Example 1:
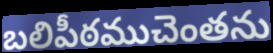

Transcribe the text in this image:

బలిపీఠముచెంతను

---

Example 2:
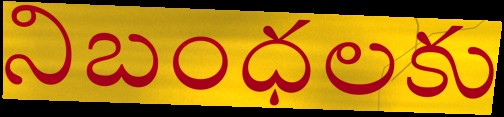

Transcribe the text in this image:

నిబంధలకు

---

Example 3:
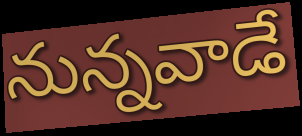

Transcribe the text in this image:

నున్నవాడే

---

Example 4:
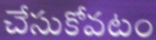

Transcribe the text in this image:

చేసుకోవటం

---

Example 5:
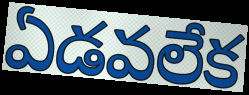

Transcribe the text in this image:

ఏడవలేక